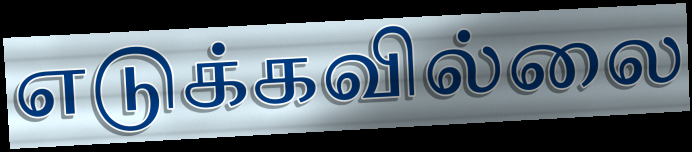
எடுக்கவில்லை